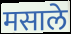
मसाले